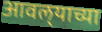
आवल्याच्या